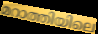
മറാത്തിയിലെ